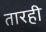
तारही